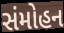
સંમોહન